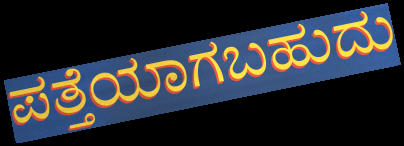
ಪತ್ತೆಯಾಗಬಹುದು